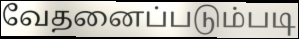
வேதனைப்படும்படி